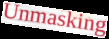
Unmasking